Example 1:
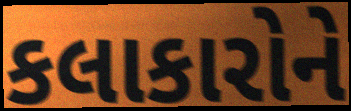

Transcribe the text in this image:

કલાકારોને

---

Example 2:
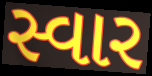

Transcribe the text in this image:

સ્વાર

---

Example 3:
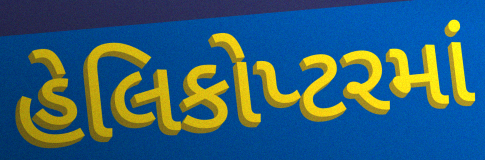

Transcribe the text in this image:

હેલિકોપ્ટરમાં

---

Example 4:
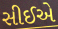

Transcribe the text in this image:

સીઈએ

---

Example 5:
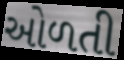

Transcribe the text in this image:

ઓળતી